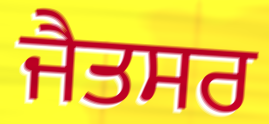
ਜੈਤਸਰ